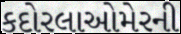
કદોરલાઓમેરની